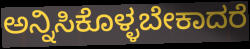
ಅನ್ನಿಸಿಕೊಳ್ಳಬೇಕಾದರೆ